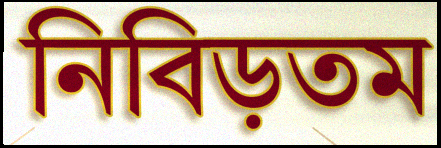
নিবিড়তম